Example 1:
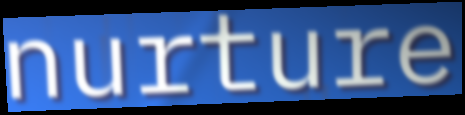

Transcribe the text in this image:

nurture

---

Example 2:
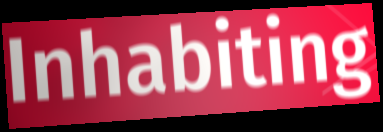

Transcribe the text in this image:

Inhabiting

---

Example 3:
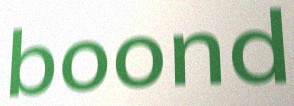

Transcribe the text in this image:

boond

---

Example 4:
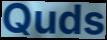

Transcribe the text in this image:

Quds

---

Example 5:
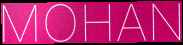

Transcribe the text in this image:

MOHAN